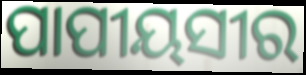
ପାପୀୟସୀର